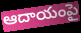
ఆదాయంపై